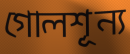
গোলশূন্য